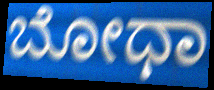
ಬೋಧಾ